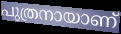
പുത്രനായാണ്